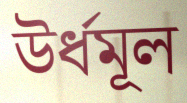
উর্ধমূল